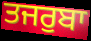
ਤਜਰੁਬਾ